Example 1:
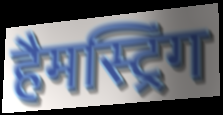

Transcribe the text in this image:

हैमस्ट्रिंग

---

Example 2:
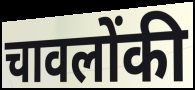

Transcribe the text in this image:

चावलोंकी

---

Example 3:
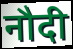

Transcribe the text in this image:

नौदी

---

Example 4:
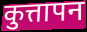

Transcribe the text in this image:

कुत्तापन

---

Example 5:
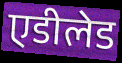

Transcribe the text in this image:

एडीलेड